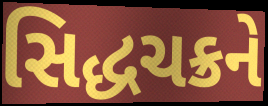
સિદ્ધચક્રને